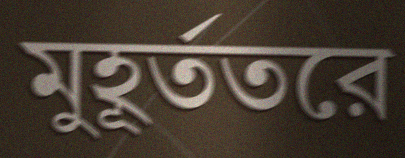
মুহূর্ততরে